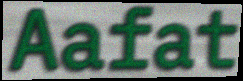
Aafat